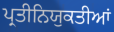
ਪ੍ਰਤੀਨਿਯੁਕਤੀਆਂ